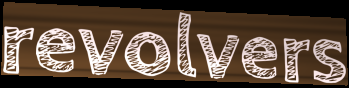
revolvers